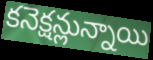
కనెక్షన్లున్నాయి